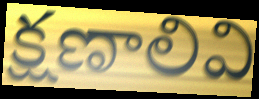
క్షణాలివి